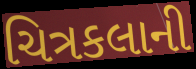
ચિત્રકલાની